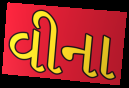
વીના